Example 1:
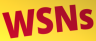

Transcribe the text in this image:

WSNs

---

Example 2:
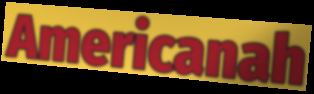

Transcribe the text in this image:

Americanah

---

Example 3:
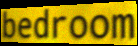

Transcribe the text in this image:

bedroom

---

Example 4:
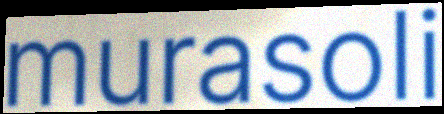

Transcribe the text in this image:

murasoli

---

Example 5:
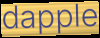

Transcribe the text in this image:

dapple